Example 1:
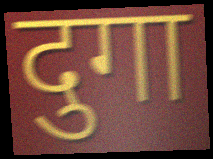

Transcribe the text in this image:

दुगा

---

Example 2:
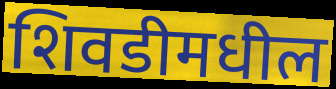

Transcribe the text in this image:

शिवडीमधील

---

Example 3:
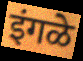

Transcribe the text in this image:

इंगळे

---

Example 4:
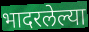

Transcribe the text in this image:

भादरलेल्या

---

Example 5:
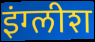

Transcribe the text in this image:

इंग्लीश